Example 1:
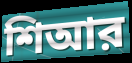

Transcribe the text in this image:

শিআর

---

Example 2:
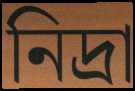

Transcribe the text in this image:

নিদ্রা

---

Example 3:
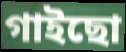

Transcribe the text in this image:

গাইছো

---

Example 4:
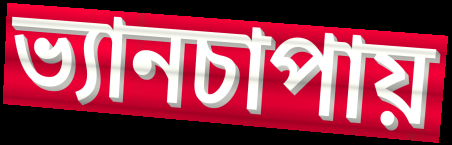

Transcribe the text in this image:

ভ্যানচাপায়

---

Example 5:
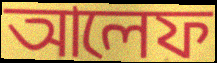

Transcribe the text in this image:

আলেফ